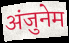
अंजुनेम